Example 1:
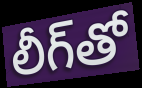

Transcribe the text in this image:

లీగ్‌తో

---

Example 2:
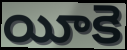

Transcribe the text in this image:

యీకె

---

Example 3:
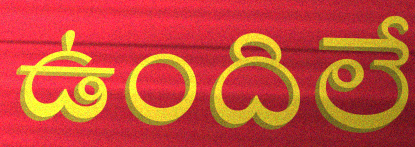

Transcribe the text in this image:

ఉందిలే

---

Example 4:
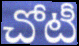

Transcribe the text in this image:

చోటీ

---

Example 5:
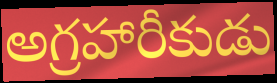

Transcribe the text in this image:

అగ్రహారీకుడు